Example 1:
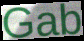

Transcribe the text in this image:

Gab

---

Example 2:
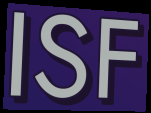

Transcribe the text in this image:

ISF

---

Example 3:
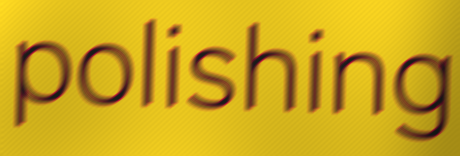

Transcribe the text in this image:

polishing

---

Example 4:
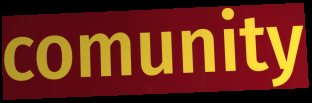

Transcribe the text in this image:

comunity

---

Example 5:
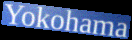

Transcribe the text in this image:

Yokohama